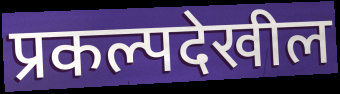
प्रकल्पदेखील